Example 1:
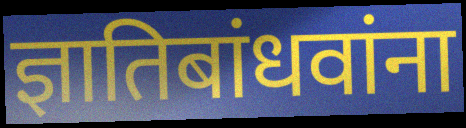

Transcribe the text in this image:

ज्ञातिबांधवांना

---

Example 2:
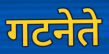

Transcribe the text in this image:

गटनेते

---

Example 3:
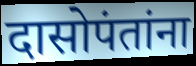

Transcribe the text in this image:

दासोपंतांना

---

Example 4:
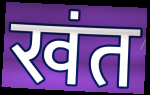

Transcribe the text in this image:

खंत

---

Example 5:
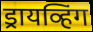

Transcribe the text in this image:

ड्रायव्हिंग